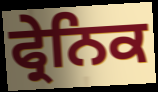
ਫ੍ਰੇਨਿਕ